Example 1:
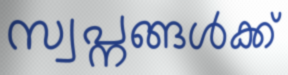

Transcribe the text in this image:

സ്വപ്നങ്ങൾക്ക്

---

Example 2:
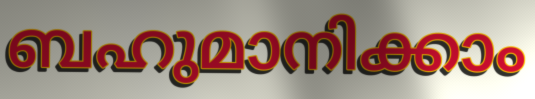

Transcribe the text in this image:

ബഹുമാനിക്കാം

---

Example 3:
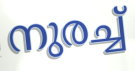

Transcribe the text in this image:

നുരച്ച്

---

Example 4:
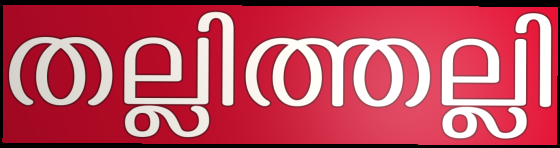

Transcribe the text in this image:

തല്ലിത്തല്ലി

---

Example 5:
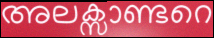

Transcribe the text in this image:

അലക്സാണ്ടറെ